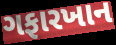
ગફારખાન